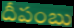
దీపంబు